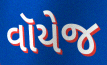
વૉયેજ